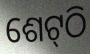
ଶେଟ୍‍ଠି